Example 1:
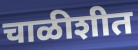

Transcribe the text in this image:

चाळीशीत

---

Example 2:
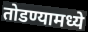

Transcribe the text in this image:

तोडण्यामध्ये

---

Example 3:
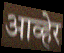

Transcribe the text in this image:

आव्हेर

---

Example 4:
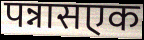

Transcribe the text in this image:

पन्नासएक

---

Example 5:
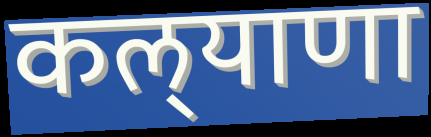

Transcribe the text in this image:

कल्याणा